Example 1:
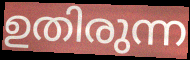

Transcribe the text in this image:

ഉതിരുന്ന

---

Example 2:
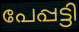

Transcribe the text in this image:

പേപ്പട്ടി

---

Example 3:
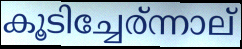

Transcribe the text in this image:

കൂടിച്ചേര്ന്നാല്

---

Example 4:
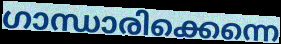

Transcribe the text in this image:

ഗാന്ധാരിക്കെന്നെ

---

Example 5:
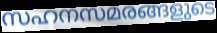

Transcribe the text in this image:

സഹനസമരങ്ങളുടെ